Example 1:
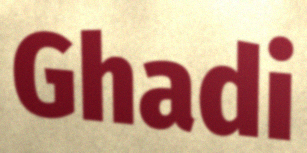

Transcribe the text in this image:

Ghadi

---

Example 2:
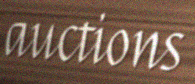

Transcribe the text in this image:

auctions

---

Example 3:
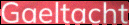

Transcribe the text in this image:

Gaeltacht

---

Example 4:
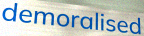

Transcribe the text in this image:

demoralised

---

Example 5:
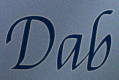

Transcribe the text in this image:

Dab